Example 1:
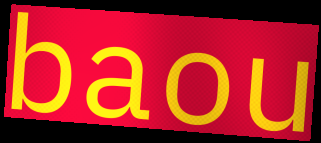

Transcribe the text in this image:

baou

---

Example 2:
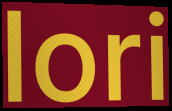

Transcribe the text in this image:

lori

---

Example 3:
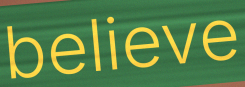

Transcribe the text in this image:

believe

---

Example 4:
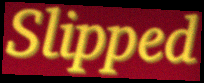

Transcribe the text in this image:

Slipped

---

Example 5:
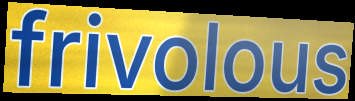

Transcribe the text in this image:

frivolous